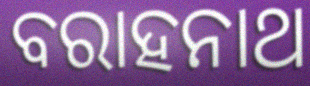
ବରାହନାଥ